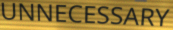
UNNECESSARY